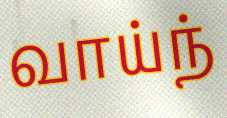
வாய்ந்